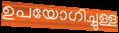
ഉപയോഗിച്ചുള്ള